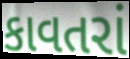
કાવતરાં